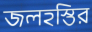
জলহস্তির